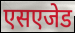
एसएजेड